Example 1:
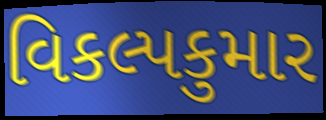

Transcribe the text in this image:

વિકલ્પકુમાર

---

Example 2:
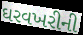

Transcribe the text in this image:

ઘરવખરીની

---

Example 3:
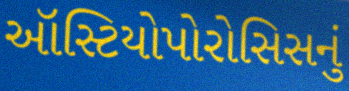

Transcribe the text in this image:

ઑસ્ટિયોપોરોસિસનું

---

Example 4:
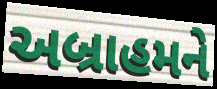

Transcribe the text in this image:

અબ્રાહમને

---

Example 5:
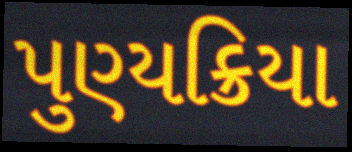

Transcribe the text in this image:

પુણ્યક્રિયા